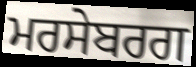
ਮਰਸੇਬਰਗ